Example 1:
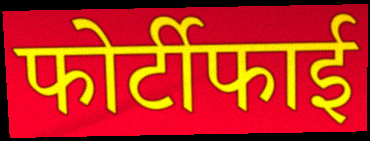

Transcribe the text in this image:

फोर्टीफाई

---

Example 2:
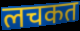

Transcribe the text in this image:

लचकत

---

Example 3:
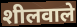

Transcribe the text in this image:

शीलवाले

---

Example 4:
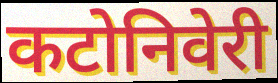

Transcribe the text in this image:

कटोनिवेरी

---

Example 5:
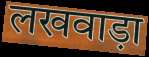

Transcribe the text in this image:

लखवाड़ा